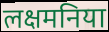
लक्षमनिया